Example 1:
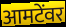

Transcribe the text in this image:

आमटेंवर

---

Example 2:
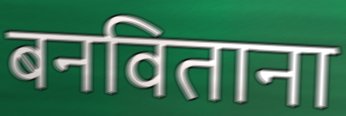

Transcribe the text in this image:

बनविताना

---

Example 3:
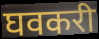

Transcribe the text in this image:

घवकरी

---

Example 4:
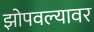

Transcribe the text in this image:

झोपवल्यावर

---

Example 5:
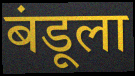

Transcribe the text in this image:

बंडूला